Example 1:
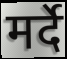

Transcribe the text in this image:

मर्दे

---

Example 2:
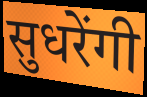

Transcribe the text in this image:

सुधरेंगी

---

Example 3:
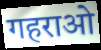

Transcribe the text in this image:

गहराओ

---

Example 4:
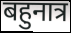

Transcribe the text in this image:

बहुनात्र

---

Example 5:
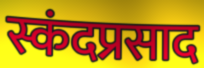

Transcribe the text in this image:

स्कंदप्रसाद